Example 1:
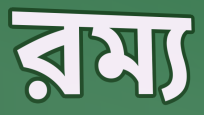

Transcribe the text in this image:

রম্য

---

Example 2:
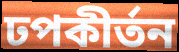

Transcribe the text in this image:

ঢপকীর্তন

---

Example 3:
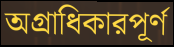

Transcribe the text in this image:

অগ্রাধিকারপূর্ণ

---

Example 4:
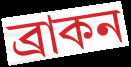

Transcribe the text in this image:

ব্রাকন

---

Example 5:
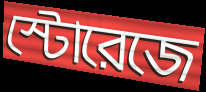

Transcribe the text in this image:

স্টোরেজে